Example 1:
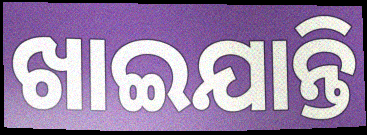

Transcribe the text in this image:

ଖାଇଯାନ୍ତି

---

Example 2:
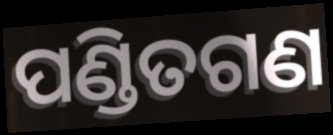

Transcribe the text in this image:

ପଣ୍ଡିତଗଣ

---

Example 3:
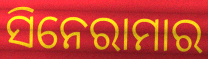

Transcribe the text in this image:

ସିନେରାମାର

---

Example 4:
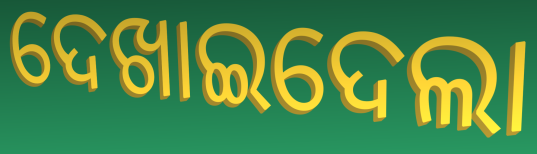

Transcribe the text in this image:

ଦେଖାଇଦେଲା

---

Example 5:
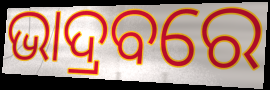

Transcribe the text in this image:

ଭାଦ୍ରବରେ